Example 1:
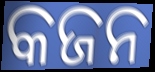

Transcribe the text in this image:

କଜନ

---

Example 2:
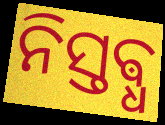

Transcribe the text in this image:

ନିସ୍ତଵ୍ଧ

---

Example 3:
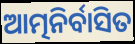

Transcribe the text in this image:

ଆତ୍ମନିର୍ବାସିତ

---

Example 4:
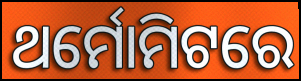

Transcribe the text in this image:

ଥର୍ମୋମିଟରେ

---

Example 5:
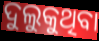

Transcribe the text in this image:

ଦୁଲୁକୁଥିବା